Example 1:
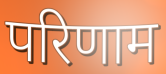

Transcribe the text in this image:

परिणाम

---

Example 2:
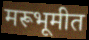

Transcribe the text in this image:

मरूभूमीत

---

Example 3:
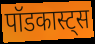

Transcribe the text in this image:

पॉडकास्ट्स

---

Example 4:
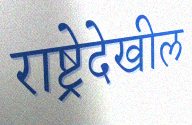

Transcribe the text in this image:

राष्ट्रेदेखील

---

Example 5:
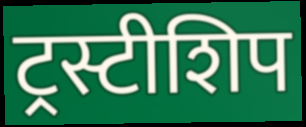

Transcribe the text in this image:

ट्रस्टीशिप